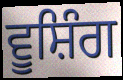
ਵੂਸ਼ਿੰਗ